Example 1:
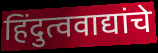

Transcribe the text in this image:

हिंदुत्ववाद्यांचे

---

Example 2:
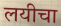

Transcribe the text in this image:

लयीचा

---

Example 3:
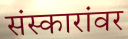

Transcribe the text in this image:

संस्कारांवर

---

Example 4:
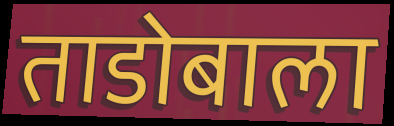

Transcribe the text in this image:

ताडोबाला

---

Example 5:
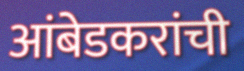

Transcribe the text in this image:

आंबेडकरांची